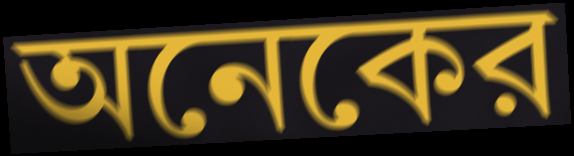
অনেকের